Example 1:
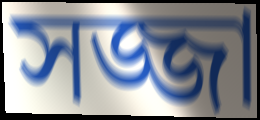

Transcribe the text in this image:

সজ্জা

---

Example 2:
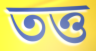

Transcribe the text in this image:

তত্ত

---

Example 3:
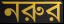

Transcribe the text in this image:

নরুর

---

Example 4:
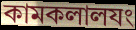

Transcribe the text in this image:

কামকলালযং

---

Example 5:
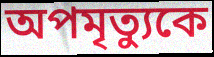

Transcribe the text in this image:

অপমৃত্যুকে